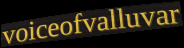
voiceofvalluvar